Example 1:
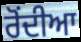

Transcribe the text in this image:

ਰੋਂਦੀਆ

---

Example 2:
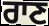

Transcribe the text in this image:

ਰਾਣ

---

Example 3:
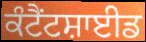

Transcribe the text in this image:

ਕੰਟੈਂਟਸ਼ਾਈਡ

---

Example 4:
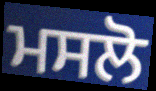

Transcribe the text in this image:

ਮਸਲੋ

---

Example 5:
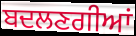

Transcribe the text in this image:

ਬਦਲਣਗੀਆਂ